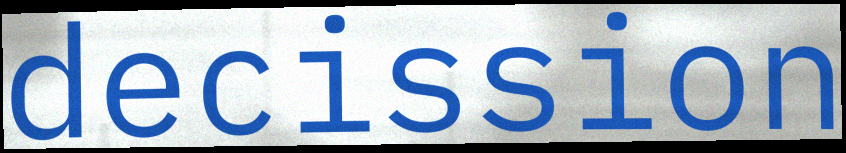
decission